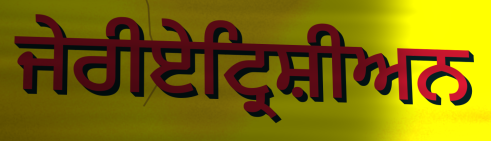
ਜੇਰੀਏਟ੍ਰਿਸ਼ੀਅਨ